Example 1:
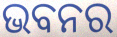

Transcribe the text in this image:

ଭବନର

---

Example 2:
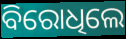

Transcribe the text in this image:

ବିରୋଧିଲେ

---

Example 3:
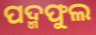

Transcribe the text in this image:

ପଦ୍ମଫୁଲ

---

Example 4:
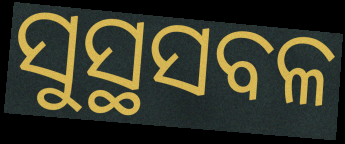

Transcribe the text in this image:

ସୁସ୍ଥସବଳ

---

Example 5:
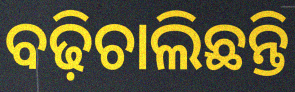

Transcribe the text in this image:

ବଢ଼ିଚାଲିଛନ୍ତି